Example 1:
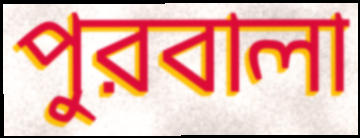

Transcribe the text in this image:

পুরবালা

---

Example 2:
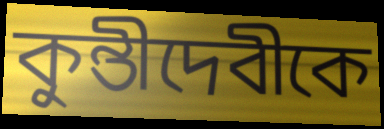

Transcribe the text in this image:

কুন্তীদেবীকে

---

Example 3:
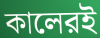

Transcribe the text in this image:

কালেরই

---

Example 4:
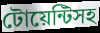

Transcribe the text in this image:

টোয়েন্টিসহ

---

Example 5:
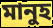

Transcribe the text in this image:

মানুহ